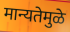
मान्यतेमुळे